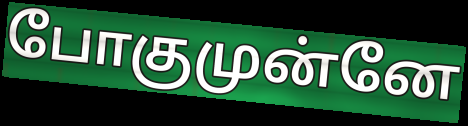
போகுமுன்னே